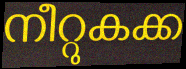
നീറ്റുകക്ക